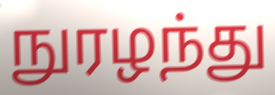
நுரழந்து